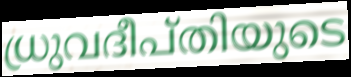
ധ്രുവദീപ്തിയുടെ